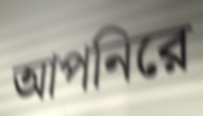
আপনিরে